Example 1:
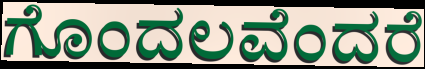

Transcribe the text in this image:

ಗೊಂದಲವೆಂದರೆ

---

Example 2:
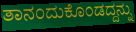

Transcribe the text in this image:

ತಾನಂದುಕೊಂಡದ್ದನ್ನು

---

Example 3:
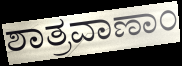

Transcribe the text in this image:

ಶಾತ್ರವಾಣಾಂ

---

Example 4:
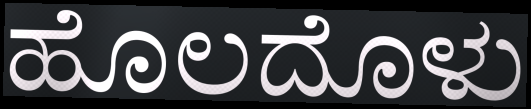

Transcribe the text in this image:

ಹೊಲದೊಳು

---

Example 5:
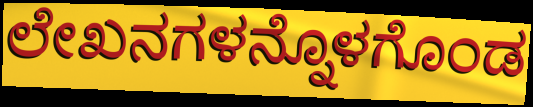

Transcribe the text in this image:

ಲೇಖನಗಳನ್ನೊಳಗೊಂಡ